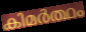
കിമർത്ഥം